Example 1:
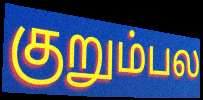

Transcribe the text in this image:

குறும்பல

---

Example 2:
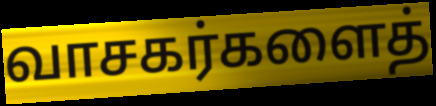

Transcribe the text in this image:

வாசகர்களைத்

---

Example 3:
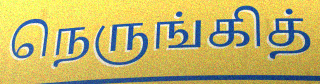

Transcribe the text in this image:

நெருங்கித்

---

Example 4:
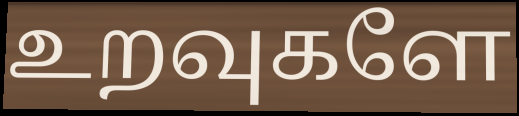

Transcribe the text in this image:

உறவுகளே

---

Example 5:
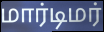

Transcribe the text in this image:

மார்டிமர்